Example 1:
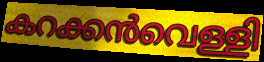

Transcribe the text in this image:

കറക്കൻവെള്ളി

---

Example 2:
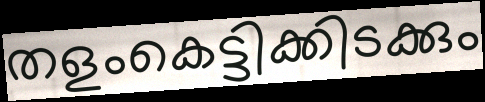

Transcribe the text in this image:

തളംകെട്ടിക്കിടക്കും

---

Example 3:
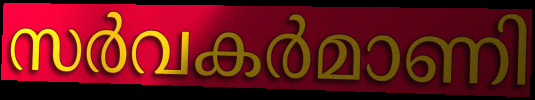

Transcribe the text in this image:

സർവകർമാണി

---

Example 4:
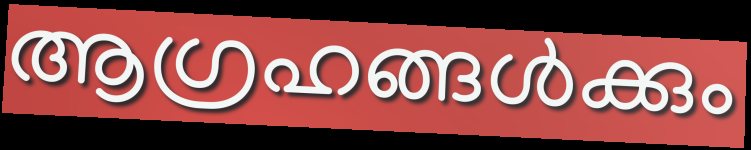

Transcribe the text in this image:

ആഗ്രഹങ്ങൾക്കും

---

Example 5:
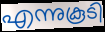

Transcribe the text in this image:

എന്നുകൂടി